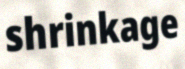
shrinkage